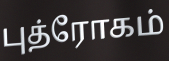
புத்ரோகம்